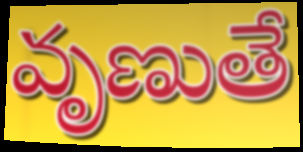
వృణుతే